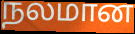
நலமான